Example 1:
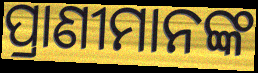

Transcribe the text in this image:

ପ୍ରାଣୀମାନଙ୍କ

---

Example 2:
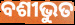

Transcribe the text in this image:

ବଶୀଭୁତ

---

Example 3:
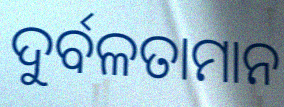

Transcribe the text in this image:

ଦୁର୍ବଳତାମାନ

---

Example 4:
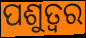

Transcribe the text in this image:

ପଶୁତ୍ୱର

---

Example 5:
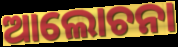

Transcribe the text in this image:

ଆଲୋଚନା